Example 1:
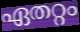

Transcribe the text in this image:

ഏതറ്റം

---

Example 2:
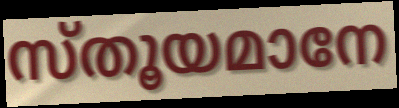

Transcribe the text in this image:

സ്തൂയമാനേ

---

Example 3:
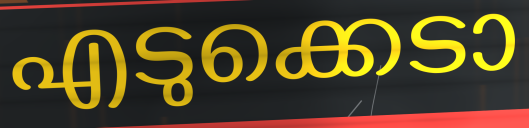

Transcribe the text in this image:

എടുക്കെടാ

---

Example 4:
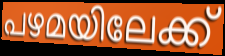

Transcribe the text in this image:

പഴമയിലേക്ക്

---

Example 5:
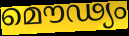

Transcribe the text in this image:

മൌഢ്യം